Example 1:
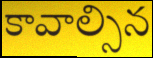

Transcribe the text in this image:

కావాల్సిన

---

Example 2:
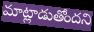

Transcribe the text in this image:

మాట్లాడుతోందని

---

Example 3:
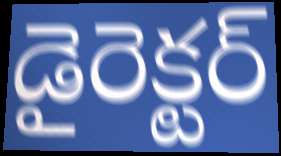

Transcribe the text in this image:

డైరెక్టర్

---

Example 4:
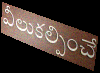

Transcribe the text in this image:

వీలుకల్పించే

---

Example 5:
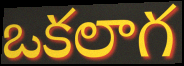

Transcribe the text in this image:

ఒకలాగ